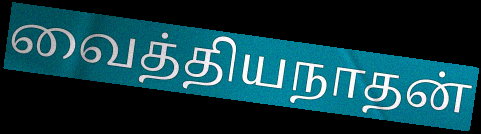
வைத்தியநாதன்